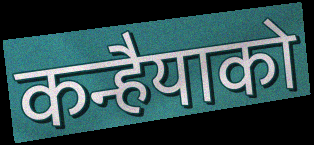
कन्हैयाको